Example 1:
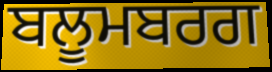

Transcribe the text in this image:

ਬਲੂਮਬਰਗ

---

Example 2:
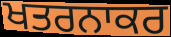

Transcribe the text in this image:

ਖਤਰਨਾਕਰ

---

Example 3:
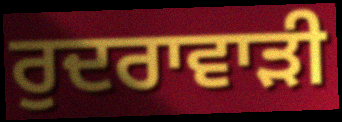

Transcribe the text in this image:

ਰੁਦਰਾਵਾੜੀ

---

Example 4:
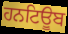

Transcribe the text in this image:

ਹਨਟਿਊਬ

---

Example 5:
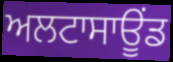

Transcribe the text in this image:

ਅਲਟਾਸਾਊਂਡ